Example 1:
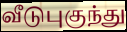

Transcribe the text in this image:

வீடுபுகுந்து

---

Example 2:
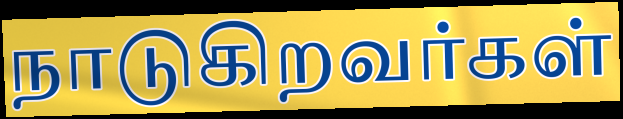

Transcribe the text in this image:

நாடுகிறவர்கள்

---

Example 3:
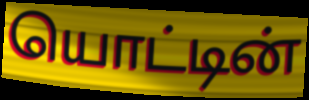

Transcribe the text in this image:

யொட்டின்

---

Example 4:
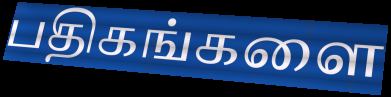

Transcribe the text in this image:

பதிகங்களை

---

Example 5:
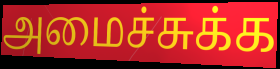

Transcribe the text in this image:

அமைச்சுக்க